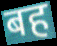
बह